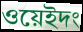
ওয়েইদং